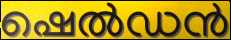
ഷെൽഡൻ